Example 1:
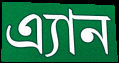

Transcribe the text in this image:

এ্যান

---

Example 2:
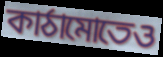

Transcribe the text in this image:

কাঠামোতেও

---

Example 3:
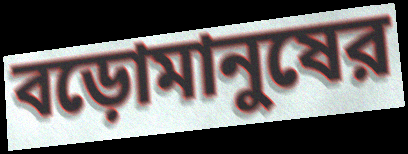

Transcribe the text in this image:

বড়োমানুষের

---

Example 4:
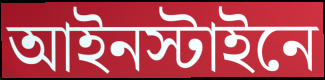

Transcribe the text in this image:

আইনস্টাইনে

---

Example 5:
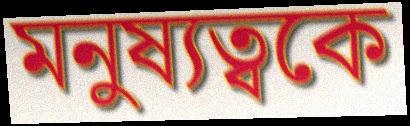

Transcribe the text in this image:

মনুষ্যত্বকে